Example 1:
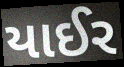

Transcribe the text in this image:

યાઈર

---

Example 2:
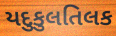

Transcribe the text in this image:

યદુકુલતિલક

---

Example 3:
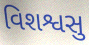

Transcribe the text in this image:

વિશશ્વસુ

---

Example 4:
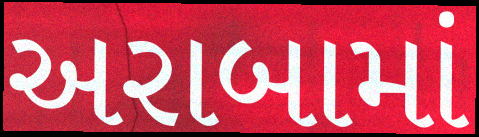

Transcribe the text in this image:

અરાબામાં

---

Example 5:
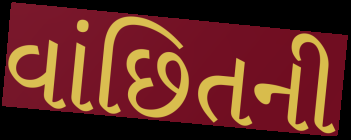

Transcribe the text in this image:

વાંછિતની